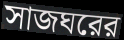
সাজঘরের